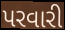
પરવારી